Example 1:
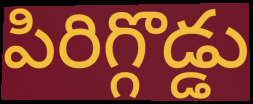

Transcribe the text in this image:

పిరిగ్గొడ్డు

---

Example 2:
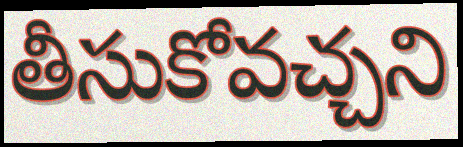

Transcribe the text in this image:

తీసుకోవచ్చని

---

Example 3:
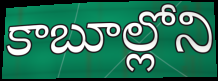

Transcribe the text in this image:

కాబూల్లోని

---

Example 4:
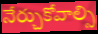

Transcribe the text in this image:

నేర్చుకోవాల్సి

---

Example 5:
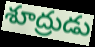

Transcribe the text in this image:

శూద్రుడు